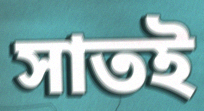
সাতই